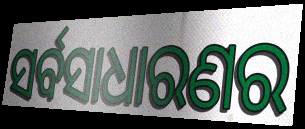
ସର୍ବସାଧାରଣର